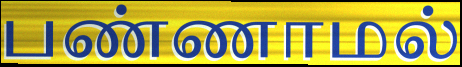
பண்ணாமல்